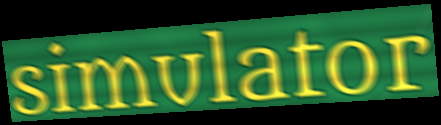
simulator